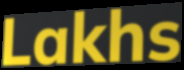
Lakhs